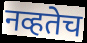
नव्हतेच